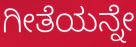
ಗೀತೆಯನ್ನೇ